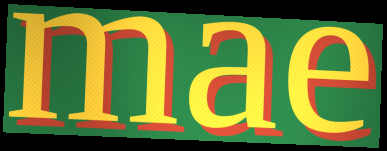
mae